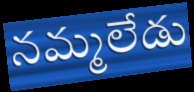
నమ్మలేడు